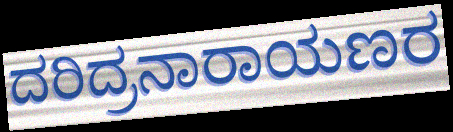
ದರಿದ್ರನಾರಾಯಣರ